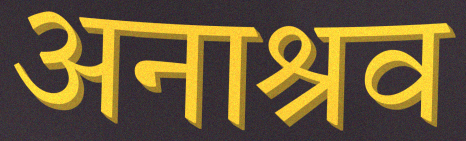
अनाश्रव